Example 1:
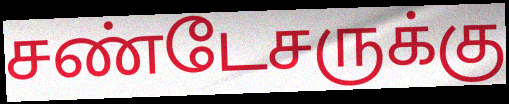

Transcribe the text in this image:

சண்டேசருக்கு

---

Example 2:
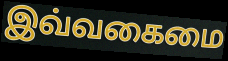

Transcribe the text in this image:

இவ்வகைமை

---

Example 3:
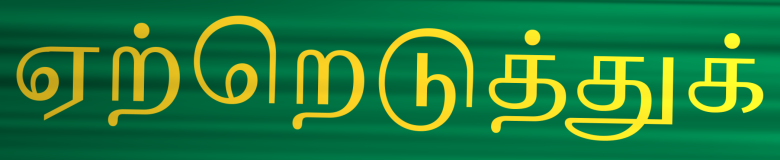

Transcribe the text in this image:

ஏற்றெடுத்துக்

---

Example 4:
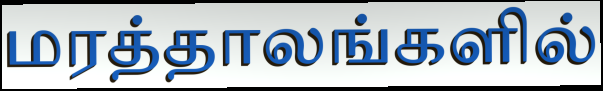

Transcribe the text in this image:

மரத்தாலங்களில்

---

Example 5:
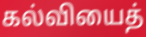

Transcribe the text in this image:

கல்வியைத்